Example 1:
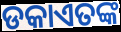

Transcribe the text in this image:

ଡକାଏତଙ୍କ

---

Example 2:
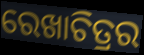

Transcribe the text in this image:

ରେଖାଚିତ୍ରର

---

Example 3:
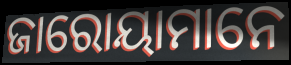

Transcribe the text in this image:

ଜାରୋୟାମାନେ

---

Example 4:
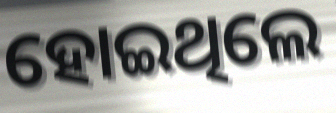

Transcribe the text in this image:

ହୋଇଥିଲେ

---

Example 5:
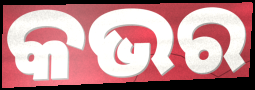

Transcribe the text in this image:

କଭର